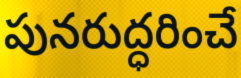
పునరుద్ధరించే